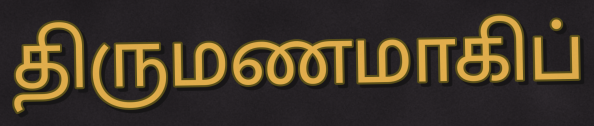
திருமணமாகிப்